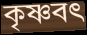
কৃষ্ণবৎ